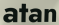
atan